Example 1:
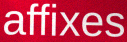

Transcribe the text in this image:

affixes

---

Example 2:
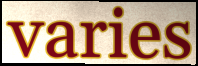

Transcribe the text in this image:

varies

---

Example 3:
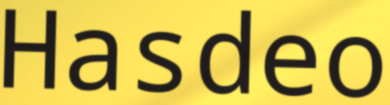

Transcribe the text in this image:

Hasdeo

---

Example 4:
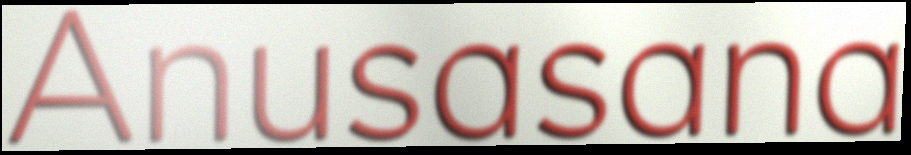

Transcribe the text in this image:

Anusasana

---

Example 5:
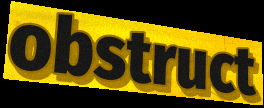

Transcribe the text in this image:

obstruct